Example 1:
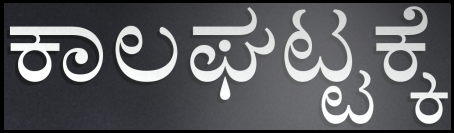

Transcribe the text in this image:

ಕಾಲಘಟ್ಟಕ್ಕೆ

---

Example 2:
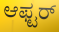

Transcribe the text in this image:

ಆಫ್ಟರ್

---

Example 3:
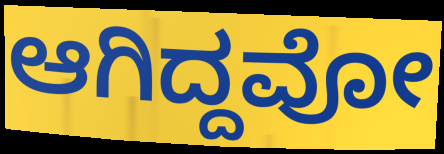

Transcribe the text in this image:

ಆಗಿದ್ದವೋ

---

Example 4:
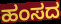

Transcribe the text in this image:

ಹಂಸದ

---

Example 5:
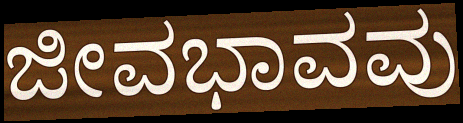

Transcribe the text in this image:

ಜೀವಭಾವವು